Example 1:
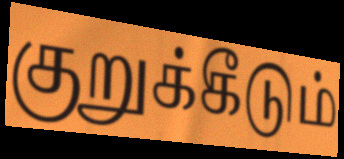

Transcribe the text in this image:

குறுக்கீடும்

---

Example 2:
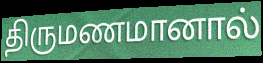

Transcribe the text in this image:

திருமணமானால்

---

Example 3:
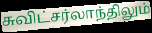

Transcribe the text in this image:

சுவிட்சர்லாந்திலும்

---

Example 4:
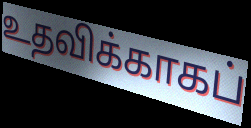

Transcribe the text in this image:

உதவிக்காகப்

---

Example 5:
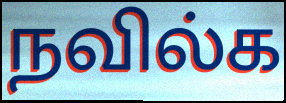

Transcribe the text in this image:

நவில்க